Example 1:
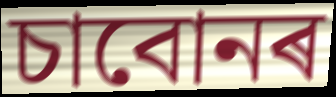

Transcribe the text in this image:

চাবোনৰ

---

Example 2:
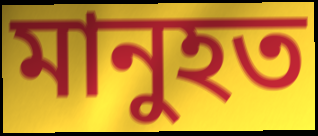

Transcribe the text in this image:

মানুহত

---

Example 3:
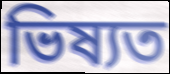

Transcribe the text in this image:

ভিষ্যত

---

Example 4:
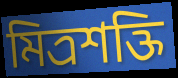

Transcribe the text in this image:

মিত্ৰশক্তি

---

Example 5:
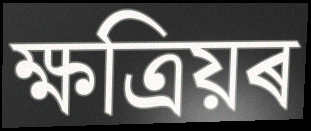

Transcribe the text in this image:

ক্ষত্ৰিয়ৰ